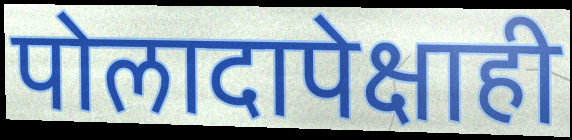
पोलादापेक्षाही